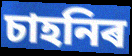
চাহনিৰ